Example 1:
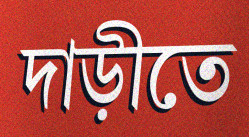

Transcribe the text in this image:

দাড়ীতে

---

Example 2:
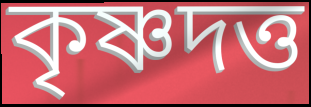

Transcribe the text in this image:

কৃষ্ণদত্ত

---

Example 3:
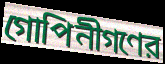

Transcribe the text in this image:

গোপিনীগণের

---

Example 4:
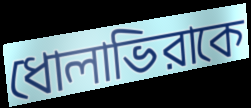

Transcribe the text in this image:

ধোলাভিরাকে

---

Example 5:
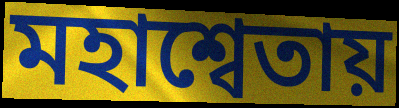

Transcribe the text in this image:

মহাশ্বেতায়